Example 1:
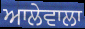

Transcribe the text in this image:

ਆਲੇਵਾਲਾ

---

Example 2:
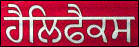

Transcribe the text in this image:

ਹੈਲਿਫੈਕਸ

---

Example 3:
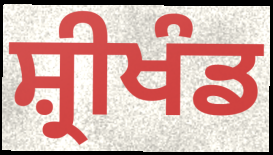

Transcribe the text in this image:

ਸ਼੍ਰੀਖੰਡ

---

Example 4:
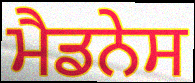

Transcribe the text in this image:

ਮੈਡਨੇਸ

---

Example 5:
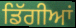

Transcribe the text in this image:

ਡਿੱਗੀਆਂ